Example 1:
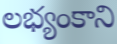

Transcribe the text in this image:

లభ్యంకాని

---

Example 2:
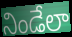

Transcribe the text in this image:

నిండేలా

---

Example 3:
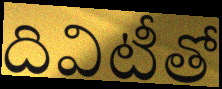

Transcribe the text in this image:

దివిటీతో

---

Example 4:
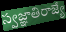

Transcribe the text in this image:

స్వజ్ఞాతిరాజ్యే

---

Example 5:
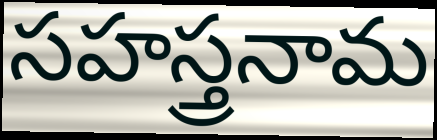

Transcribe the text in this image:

సహస్త్రనామ